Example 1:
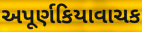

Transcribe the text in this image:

અપૂર્ણકિયાવાચક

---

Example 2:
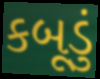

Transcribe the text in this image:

કબૂડું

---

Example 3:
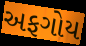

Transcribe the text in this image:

અફગોય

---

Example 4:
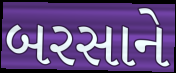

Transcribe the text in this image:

બરસાને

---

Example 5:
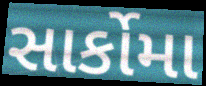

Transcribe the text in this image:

સાર્કોમા